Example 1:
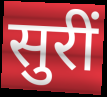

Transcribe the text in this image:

सुरीं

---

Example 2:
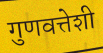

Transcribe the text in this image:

गुणवत्तेशी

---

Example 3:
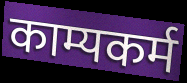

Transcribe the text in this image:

काम्यकर्म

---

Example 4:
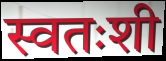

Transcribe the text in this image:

स्वतःशी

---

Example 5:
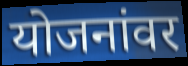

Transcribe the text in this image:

योजनांवर